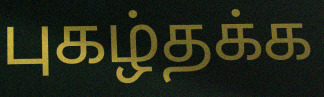
புகழ்தக்க